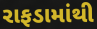
રાફડામાંથી